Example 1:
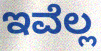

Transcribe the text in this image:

ಇವೆಲ್ಲ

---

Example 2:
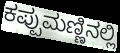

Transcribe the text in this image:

ಕಪ್ಪುಮಣ್ಣಿನಲ್ಲಿ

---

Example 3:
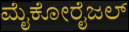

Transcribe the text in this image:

ಮೈಕೋರೈಜಲ್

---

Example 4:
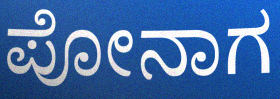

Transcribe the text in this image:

ಪೋನಾಗ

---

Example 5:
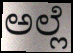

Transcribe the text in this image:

ಅಲ್ಲೆ